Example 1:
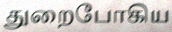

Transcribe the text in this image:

துறைபோகிய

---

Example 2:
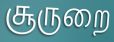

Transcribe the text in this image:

சூருறை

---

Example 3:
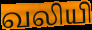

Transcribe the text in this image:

வலியி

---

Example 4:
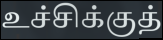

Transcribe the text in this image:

உச்சிக்குத்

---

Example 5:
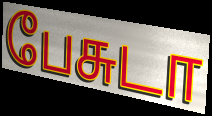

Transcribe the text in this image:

பேசுடா